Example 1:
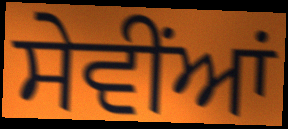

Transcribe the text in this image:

ਸੇਵੀਂਆਂ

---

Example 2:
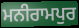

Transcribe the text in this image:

ਮਨੀਰਾਮਪੁਰ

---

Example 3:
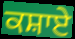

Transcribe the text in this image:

ਕਸ਼ਾਏ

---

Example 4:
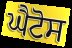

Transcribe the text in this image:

ਘੈਟੋਸ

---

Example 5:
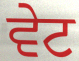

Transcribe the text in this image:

ਵੇਟ